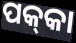
ପକ୍‌କା